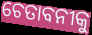
ଚେତାବନୀକୁ